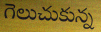
గెలుచుకున్న